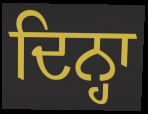
ਦਿਨ੍ਹਾ